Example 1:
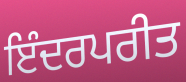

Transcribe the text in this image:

ਇੰਦਰਪਰੀਤ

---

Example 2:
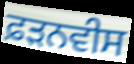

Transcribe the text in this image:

ਫ਼ੜਨਵੀਸ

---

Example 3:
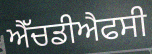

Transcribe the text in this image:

ਐੱਚਡੀਐਫਸੀ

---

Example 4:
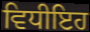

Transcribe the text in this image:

ਵਿਧੀਇਹ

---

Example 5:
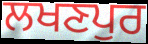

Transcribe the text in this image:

ਲਖਣਪੁਰ